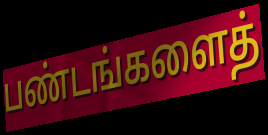
பண்டங்களைத்